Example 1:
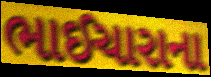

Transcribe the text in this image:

ભાઈચારાના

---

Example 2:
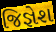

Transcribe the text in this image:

જિજ્ઞેશ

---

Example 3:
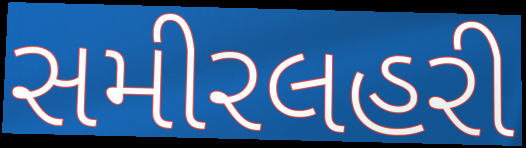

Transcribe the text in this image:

સમીરલહરી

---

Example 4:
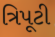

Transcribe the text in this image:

ત્રિપૂટી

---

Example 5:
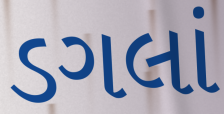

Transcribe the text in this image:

ડગલાં